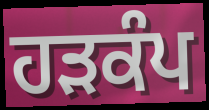
ਹਡ਼ਕੰਪ